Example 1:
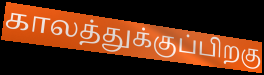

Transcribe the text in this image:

காலத்துக்குப்பிறகு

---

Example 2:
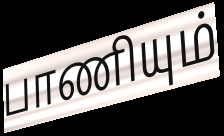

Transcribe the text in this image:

பாணியும்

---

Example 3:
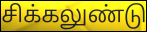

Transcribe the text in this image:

சிக்கலுண்டு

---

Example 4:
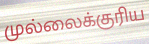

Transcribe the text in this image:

முல்லைக்குரிய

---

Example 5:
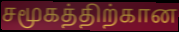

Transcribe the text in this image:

சமூகத்திற்கான